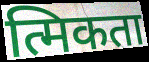
त्मिकता